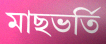
মাছভর্তি